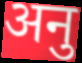
अनु